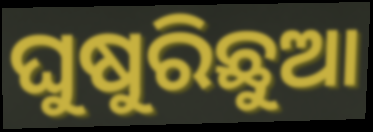
ଘୁଷୁରିଛୁଆ